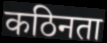
कठिनता